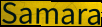
Samara